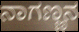
ನಾಗಣ್ಣನ